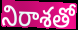
నిరాశతో